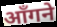
आँगने